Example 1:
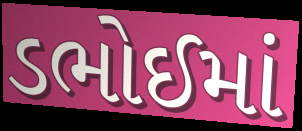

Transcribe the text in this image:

ડભોઈમાં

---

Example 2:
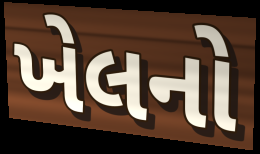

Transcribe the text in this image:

ખેલનો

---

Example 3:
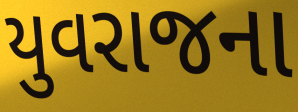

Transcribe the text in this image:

યુવરાજના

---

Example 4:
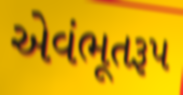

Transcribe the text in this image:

એવંભૂતરૂપ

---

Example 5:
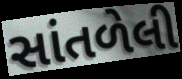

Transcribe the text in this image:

સાંતળેલી